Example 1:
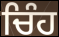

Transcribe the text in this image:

ਚਿੰਹ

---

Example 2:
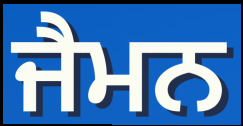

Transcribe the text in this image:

ਜੈਮਨ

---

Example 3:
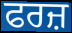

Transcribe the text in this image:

ਫਰਜ਼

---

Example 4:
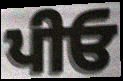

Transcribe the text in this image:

ਪੀਓ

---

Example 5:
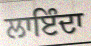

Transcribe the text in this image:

ਲਾਇੰਦਾ